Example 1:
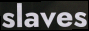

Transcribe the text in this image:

slaves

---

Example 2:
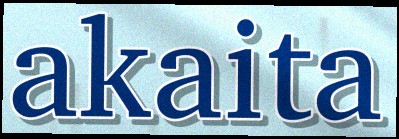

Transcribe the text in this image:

akaita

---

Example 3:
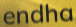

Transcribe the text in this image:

endha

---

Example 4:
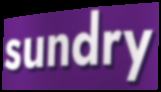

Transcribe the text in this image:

sundry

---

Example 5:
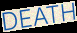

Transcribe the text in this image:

DEATH